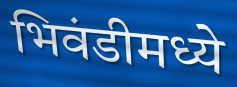
भिवंडीमध्ये